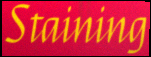
Staining